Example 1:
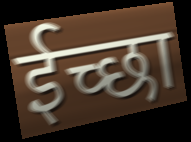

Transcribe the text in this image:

ईच्छा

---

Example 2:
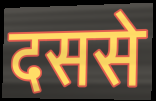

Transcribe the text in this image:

दससे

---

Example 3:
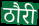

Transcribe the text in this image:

ठौरी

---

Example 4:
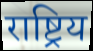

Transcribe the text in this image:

राष्ट्रिय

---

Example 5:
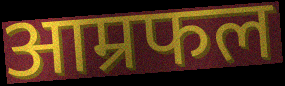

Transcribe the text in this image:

आम्रफल